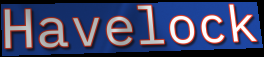
Havelock